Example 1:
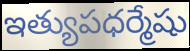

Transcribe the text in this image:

ఇత్యుపధర్మేషు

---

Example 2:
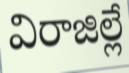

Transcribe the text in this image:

విరాజిల్లే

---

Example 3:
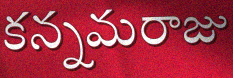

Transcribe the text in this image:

కన్నమరాజు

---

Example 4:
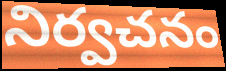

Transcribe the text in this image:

నిర్వచనం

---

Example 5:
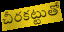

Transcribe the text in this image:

చీరకట్టుతో